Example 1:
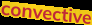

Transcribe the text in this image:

convective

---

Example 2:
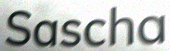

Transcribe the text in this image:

Sascha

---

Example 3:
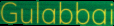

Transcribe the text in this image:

Gulabbai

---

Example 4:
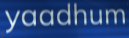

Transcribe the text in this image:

yaadhum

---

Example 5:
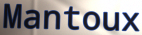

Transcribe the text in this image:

Mantoux